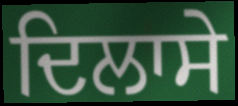
ਦਿਲਾਸੇ